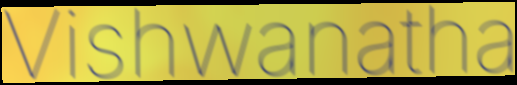
Vishwanatha